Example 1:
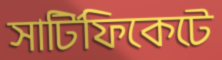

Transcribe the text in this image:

সার্টিফিকেটে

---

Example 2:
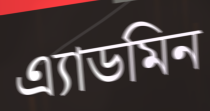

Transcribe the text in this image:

এ্যাডমিন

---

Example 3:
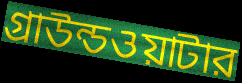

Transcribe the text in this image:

গ্রাউন্ডওয়াটার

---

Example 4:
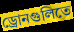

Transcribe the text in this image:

ড্রোনগুলিতে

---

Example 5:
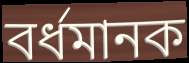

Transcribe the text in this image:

বর্ধমানক